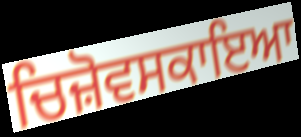
ਚਿਜ਼ੋਵਸਕਾਇਆ